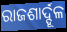
ରାଜଶାର୍ଦ୍ଦୂଳ